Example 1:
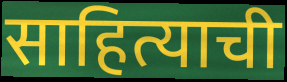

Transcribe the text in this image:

साहित्याची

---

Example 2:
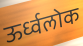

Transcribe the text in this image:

ऊर्ध्वलोक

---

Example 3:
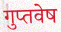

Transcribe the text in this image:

गुप्तवेष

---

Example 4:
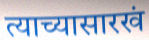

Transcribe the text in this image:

त्याच्यासारखं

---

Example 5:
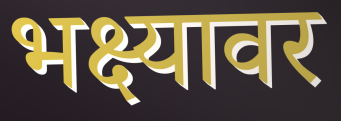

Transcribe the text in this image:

भक्ष्यावर